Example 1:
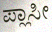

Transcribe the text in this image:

ಪ್ಲಾಸೀ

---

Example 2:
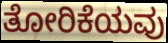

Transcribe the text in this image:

ತೋರಿಕೆಯವು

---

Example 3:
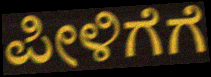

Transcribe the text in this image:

ಪೀಳಿಗೆಗೆ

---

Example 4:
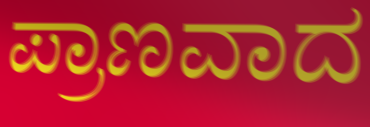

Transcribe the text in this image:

ಪ್ರಾಣವಾದ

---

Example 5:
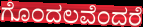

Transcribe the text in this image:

ಗೊಂದಲವೆಂದರೆ